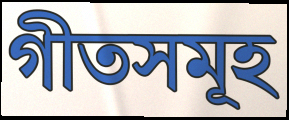
গীতসমূহ